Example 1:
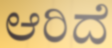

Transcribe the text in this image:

ಆರಿದೆ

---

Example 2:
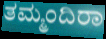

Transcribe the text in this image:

ತಮ್ಮಂದಿರಾ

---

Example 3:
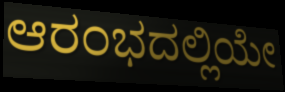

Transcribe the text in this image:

ಆರಂಭದಲ್ಲಿಯೇ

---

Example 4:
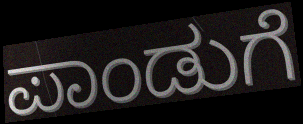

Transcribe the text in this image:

ಪಾಂಡುಗೆ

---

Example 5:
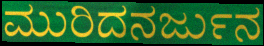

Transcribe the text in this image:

ಮುರಿದನರ್ಜುನ